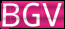
BGV